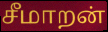
சீமாறன்